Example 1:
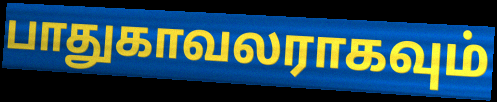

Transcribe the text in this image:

பாதுகாவலராகவும்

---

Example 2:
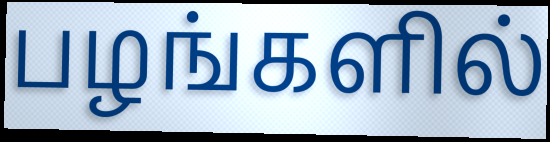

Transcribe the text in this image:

பழங்களில்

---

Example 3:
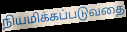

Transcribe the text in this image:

நியமிக்கப்படுவதை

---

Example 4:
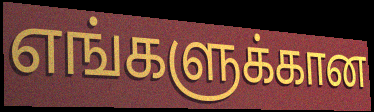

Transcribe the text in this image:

எங்களுக்கான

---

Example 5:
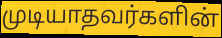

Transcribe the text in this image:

முடியாதவர்களின்